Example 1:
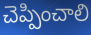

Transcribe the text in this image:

చెప్పించాలి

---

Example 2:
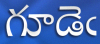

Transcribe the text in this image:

గూడెఁ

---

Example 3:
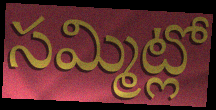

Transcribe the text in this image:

సమ్మిట్లో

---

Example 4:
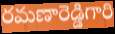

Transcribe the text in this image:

రమణారెడ్డిగారి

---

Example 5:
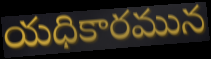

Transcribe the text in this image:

యధికారమున